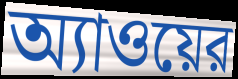
অ্যাওয়ের